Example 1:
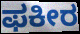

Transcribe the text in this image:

ಫಕೀರ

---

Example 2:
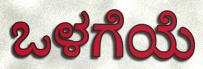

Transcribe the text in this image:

ಒಳಗೆಯೆ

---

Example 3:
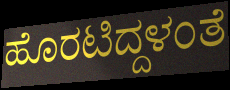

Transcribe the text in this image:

ಹೊರಟಿದ್ದಳಂತೆ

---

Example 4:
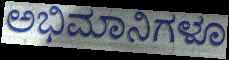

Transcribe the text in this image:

ಅಭಿಮಾನಿಗಳೂ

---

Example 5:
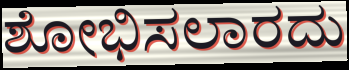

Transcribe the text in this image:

ಶೋಭಿಸಲಾರದು